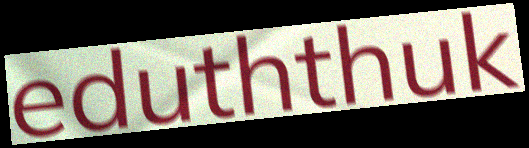
eduththuk